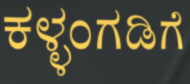
ಕಳ್ಳಂಗಡಿಗೆ